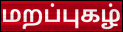
மறப்புகழ்